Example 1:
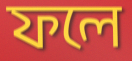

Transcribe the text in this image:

ফলে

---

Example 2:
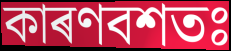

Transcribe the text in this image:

কাৰণবশতঃ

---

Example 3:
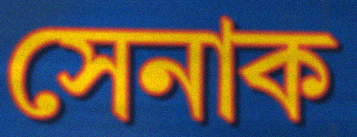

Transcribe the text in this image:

সেনাক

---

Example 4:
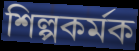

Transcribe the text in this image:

শিল্পকৰ্মক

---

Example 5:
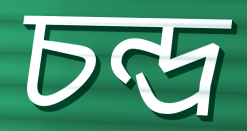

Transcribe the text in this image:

চন্দ্ৰ